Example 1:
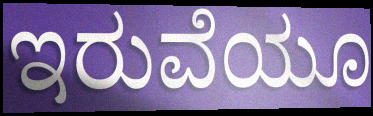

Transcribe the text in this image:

ಇರುವೆಯೂ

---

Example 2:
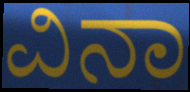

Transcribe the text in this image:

ವಿನಾ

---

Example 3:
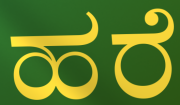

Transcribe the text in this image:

ಹರೆ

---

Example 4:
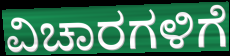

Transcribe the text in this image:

ವಿಚಾರಗಳಿಗೆ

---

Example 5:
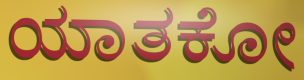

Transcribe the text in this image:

ಯಾತಕೋ